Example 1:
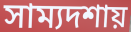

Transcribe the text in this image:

সাম্যদশায়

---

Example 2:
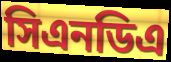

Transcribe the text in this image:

সিএনডিএ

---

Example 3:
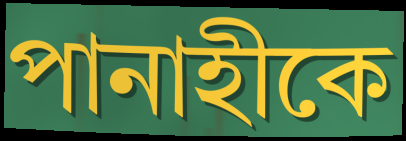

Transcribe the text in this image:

পানাহীকে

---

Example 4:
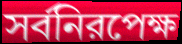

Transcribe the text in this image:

সর্বনিরপেক্ষ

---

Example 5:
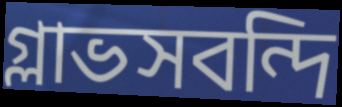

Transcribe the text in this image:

গ্লাভসবন্দি